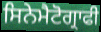
ਸਿਨੇਮੈਟੋਗ੍ਰਾਫੀ